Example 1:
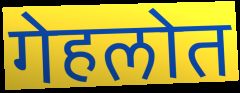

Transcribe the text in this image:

गेहलोत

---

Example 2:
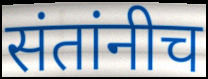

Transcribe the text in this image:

संतांनीच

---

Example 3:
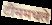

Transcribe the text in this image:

टीममधले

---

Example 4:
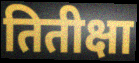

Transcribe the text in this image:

तितीक्षा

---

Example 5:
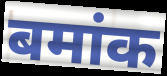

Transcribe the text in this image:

बमांक